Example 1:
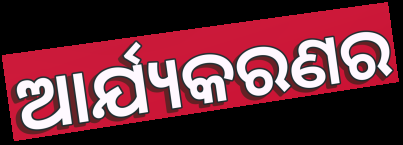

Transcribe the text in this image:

ଆର୍ଯ୍ୟକରଣର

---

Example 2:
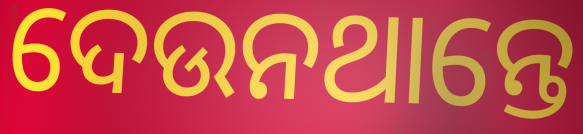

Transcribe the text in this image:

ଦେଉନଥାନ୍ତେ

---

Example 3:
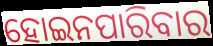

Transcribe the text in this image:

ହୋଇନପାରିବାର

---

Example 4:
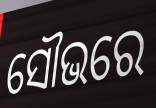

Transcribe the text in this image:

ସୌଭରେ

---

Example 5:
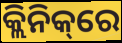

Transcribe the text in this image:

କ୍ଲିନିକ୍‌ରେ